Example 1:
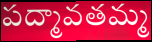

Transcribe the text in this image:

పద్మావతమ్మ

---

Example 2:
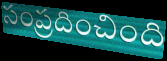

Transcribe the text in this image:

సంప్రదించింది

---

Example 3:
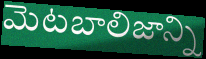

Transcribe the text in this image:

మెటబాలిజాన్ని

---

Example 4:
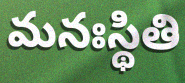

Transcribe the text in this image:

మనఃస్థితి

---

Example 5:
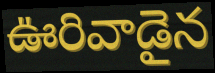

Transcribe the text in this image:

ఊరివాడైన